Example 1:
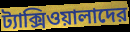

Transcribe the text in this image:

ট্যাক্সিওয়ালাদের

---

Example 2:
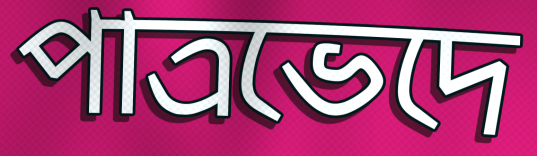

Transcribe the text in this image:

পাত্রভেদে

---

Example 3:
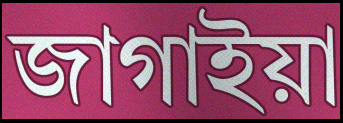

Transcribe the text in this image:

জাগাইয়া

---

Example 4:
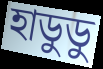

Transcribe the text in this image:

হাডুডু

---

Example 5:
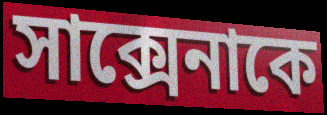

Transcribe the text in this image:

সাক্সেনাকে